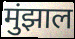
मुंझाल